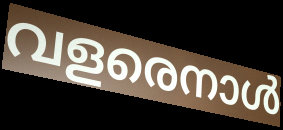
വളരെനാൾ